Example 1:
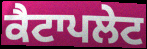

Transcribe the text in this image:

ਕੈਟਾਪਲੇਟ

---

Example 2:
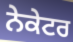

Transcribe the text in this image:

ਨੇਕੇਟਰ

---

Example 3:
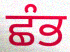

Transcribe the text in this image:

ਛੰਭ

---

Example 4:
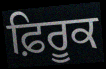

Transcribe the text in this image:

ਫ਼ਿਰੂਕ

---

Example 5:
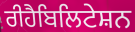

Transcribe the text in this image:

ਰੀਹੈਬਿਲਿਟੇਸ਼ਨ